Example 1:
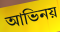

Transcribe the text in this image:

আভিনয়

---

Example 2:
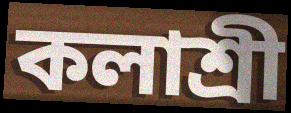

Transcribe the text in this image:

কলাশ্রী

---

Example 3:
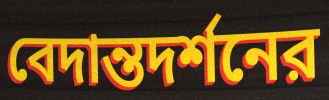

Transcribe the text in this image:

বেদান্তদর্শনের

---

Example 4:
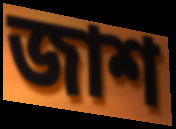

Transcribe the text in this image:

জাশ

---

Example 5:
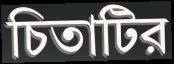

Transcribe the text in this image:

চিতাটির